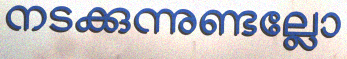
നടക്കുന്നുണ്ടല്ലോ